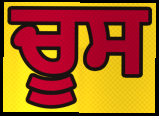
ਚੂਸ